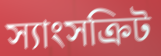
স্যাংসক্রিট